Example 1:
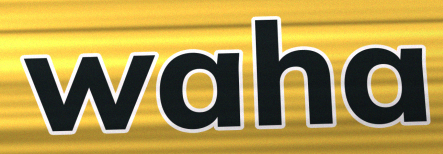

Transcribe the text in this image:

waha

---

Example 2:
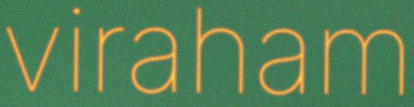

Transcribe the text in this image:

viraham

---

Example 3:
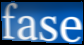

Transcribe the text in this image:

fase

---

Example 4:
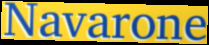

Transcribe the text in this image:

Navarone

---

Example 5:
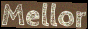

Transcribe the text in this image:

Mellor